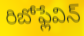
రిబోఫ్లేవిన్